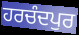
ਹਰਚੰਦਪੁਰ